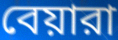
বেয়ারা